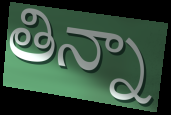
తిన్నా